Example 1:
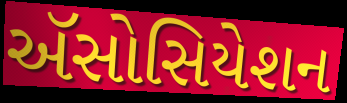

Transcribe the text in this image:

ઍસોસિયેશન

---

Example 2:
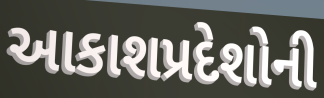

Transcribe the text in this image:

આકાશપ્રદેશોની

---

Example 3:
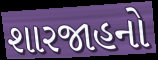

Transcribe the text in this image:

શારજાહનો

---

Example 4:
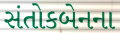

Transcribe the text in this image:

સંતોકબેનના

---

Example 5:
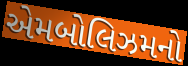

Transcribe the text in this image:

એમબોલિઝમનો